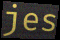
jes